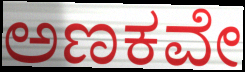
ಅಣಕವೇ